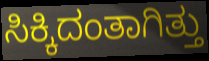
ಸಿಕ್ಕಿದಂತಾಗಿತ್ತು